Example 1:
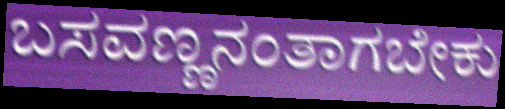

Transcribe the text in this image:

ಬಸವಣ್ಣನಂತಾಗಬೇಕು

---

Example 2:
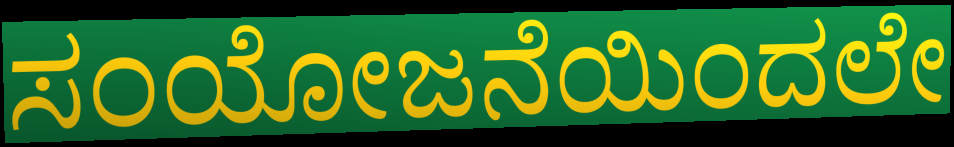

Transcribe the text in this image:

ಸಂಯೋಜನೆಯಿಂದಲೇ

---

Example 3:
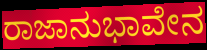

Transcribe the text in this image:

ರಾಜಾನುಭಾವೇನ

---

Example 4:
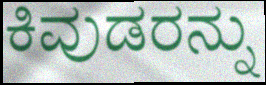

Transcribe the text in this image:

ಕಿವುಡರನ್ನು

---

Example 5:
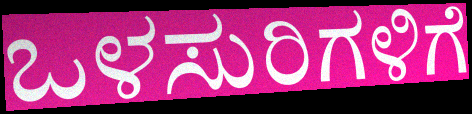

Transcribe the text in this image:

ಒಳಸುರಿಗಳಿಗೆ